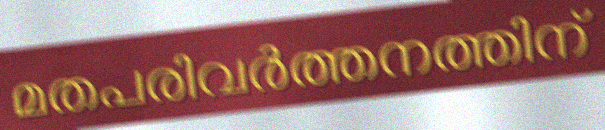
മതപരിവർത്തനത്തിന്